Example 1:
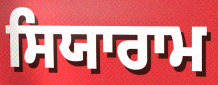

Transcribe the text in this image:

ਸਿਯਾਰਾਮ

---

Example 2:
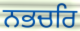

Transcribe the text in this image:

ਨਭਚਰਿ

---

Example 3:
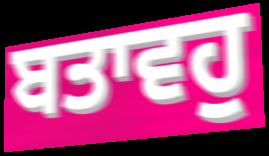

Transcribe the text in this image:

ਬਤਾਵਹੁ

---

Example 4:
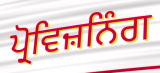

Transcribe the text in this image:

ਪ੍ਰੋਵਿਜ਼ਨਿੰਗ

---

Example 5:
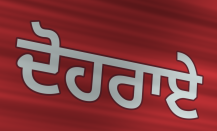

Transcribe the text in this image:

ਦੋਹਰਾਏ